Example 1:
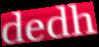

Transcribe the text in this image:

dedh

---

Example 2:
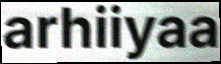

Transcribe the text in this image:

arhiiyaa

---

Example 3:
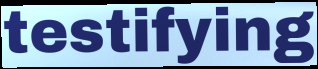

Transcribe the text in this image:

testifying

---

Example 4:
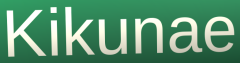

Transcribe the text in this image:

Kikunae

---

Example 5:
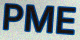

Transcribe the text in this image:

PME